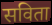
सविता